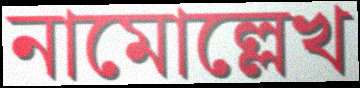
নামোল্লেখ